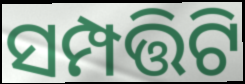
ସମ୍ପତ୍ତିଟି